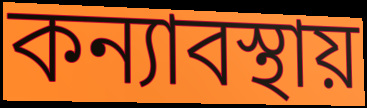
কন্যাবস্থায়